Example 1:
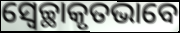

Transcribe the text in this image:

ସ୍ୱେଚ୍ଛାକୃତଭାବେ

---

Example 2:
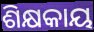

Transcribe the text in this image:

ଶିକ୍ଷକାୟ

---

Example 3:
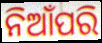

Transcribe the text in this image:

ନିଆଁପରି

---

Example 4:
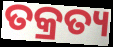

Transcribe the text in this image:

ତକ୍ରତ୍ୟ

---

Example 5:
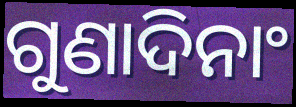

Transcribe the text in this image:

ଗୁଣାଦିନାଂ